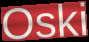
Oski